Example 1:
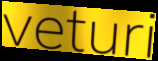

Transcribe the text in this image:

veturi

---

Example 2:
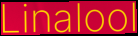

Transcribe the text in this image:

Linalool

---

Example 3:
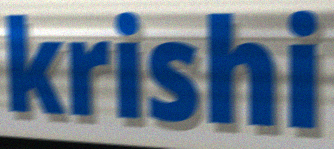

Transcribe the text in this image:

krishi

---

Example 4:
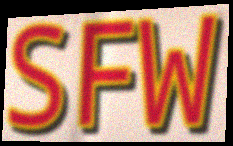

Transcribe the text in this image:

SFW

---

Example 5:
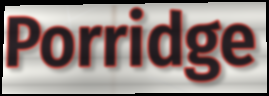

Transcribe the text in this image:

Porridge